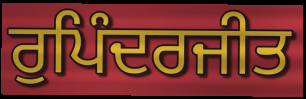
ਰੁਪਿੰਦਰਜੀਤ